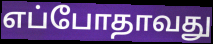
எப்போதாவது